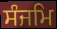
ਸੰਜਮਿ